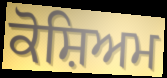
ਕੋਸ਼ਿਅਮ